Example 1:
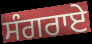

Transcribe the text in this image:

ਸੰਗਰਾਏ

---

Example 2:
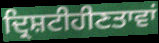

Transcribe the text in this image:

ਦ੍ਰਿਸ਼ਟੀਹੀਣਤਾਵਾਂ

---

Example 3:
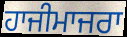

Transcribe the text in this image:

ਹਾਜੀਮਾਜਰਾ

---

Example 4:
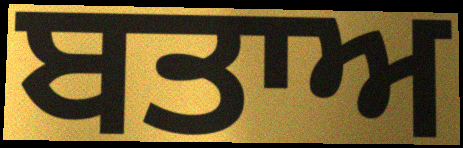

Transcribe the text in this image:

ਬਤਾਅ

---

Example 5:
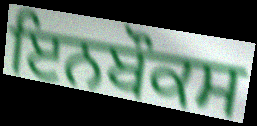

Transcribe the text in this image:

ਇਨਬੌਕਸ